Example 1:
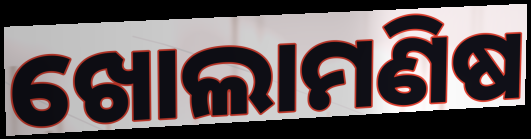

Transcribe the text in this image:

ଖୋଲାମଣିଷ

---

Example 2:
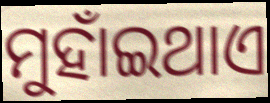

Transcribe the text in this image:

ମୁହାଁଇଥାଏ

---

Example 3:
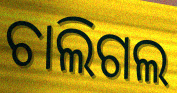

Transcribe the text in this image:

ଚାଲିଗଲ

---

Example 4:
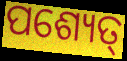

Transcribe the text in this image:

ପଶ୍ୟେତ୍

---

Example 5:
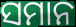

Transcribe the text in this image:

ସମାନ